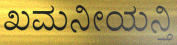
ಖಮನೀಯನ್ತಿ